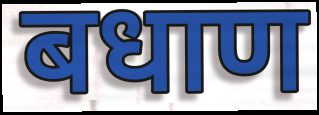
बधाण